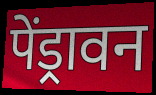
पेंड्रावन